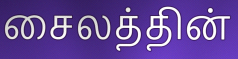
சைலத்தின்